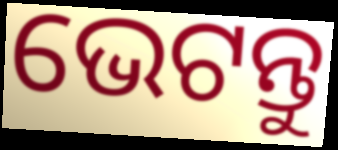
ଭେଟନ୍ତୁ